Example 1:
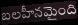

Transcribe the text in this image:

బలహీనమైంది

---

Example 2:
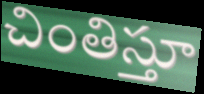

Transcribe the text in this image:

చింతిస్తూ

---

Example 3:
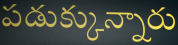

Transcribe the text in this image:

పడుక్కున్నారు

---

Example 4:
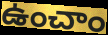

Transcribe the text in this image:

ఉంచాం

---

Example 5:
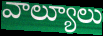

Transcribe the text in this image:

వాల్యూలు